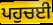
ਪਹੁਚਈ